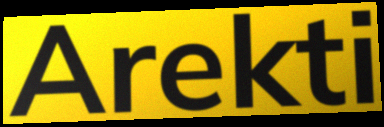
Arekti